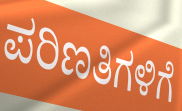
ಪರಿಣತಿಗಳಿಗೆ